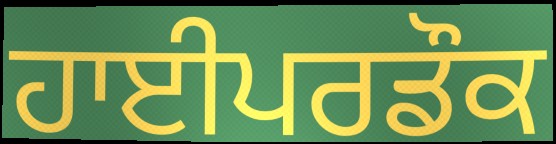
ਹਾਈਪਰਡੌਕ